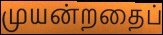
முயன்றதைப்